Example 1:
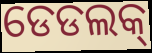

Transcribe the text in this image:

ଡେଡଲକ୍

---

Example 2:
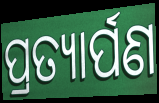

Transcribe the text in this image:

ପ୍ରତ୍ୟାର୍ପଣ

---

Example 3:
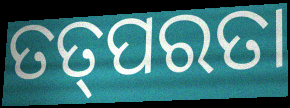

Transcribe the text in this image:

ତତ୍‌ପରତା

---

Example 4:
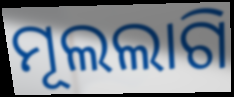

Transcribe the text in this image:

ମୂଲଲାଗି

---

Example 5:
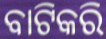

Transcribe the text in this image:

ବାଟିକରି